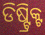
ଡିଷ୍ଟ୍ରିକ୍ଟ